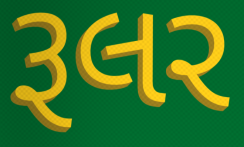
રૂલર